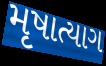
મૃષાત્યાગ